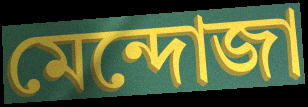
মেন্দোজা